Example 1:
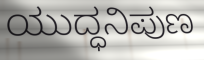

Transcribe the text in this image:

ಯುದ್ಧನಿಪುಣ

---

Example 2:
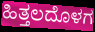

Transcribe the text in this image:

ಹಿತ್ತಲದೊಳಗ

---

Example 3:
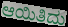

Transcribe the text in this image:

ಆಯಿತಿದು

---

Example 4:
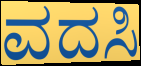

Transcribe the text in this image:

ವದಸಿ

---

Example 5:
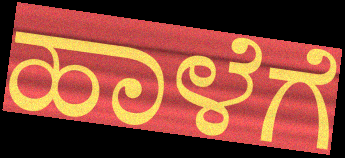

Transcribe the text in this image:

ಹಾಳೆಗೆ